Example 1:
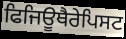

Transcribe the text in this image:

ਫਿਜਿਊਥੈਰੇਪਿਸਟ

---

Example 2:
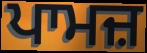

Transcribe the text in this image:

ਪਾਮਜ਼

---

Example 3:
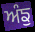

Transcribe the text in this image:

ਅੰਙੁ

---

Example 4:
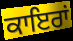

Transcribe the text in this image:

ਕਾਇਰਾਂ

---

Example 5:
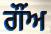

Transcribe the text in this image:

ਗੌਂਅ